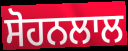
ਸੋਹਨਲਾਲ